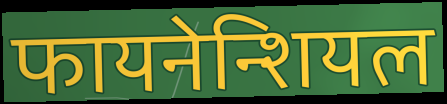
फायनेन्शियल